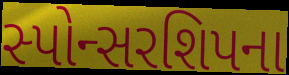
સ્પોન્સરશિપના